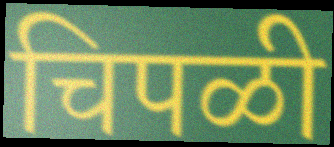
चिपळी